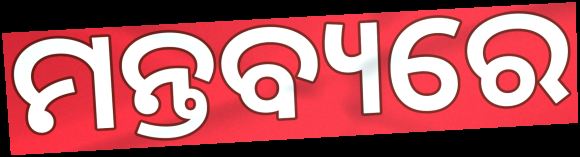
ମନ୍ତବ୍ୟରେ